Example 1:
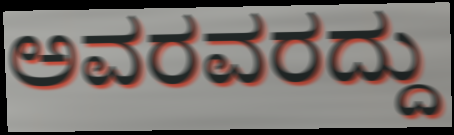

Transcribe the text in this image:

ಅವರವರದ್ದು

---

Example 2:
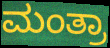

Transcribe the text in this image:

ಮಂತ್ರಾ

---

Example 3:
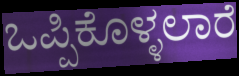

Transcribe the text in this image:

ಒಪ್ಪಿಕೊಳ್ಳಲಾರೆ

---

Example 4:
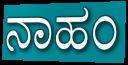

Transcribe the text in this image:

ನಾಹಂ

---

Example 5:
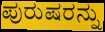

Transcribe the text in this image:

ಪುರುಷರನ್ನು